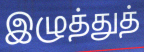
இழுத்துத்